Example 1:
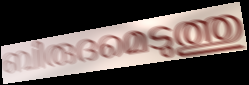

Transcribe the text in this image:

ബിരുദമെടുത്തു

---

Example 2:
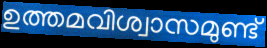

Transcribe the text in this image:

ഉത്തമവിശ്വാസമുണ്ട്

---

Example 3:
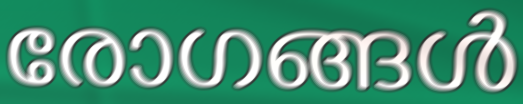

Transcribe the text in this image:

രോഗങ്ങൾ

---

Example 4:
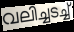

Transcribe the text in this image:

വലിച്ചടച്ച്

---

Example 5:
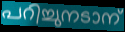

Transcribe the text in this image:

പറിച്ചുനടാന്